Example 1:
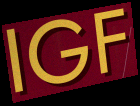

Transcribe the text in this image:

IGF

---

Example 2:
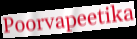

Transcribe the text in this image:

Poorvapeetika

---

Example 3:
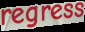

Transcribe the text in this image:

regress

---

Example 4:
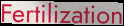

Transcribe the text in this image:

Fertilization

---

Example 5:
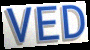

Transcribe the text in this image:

VED